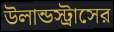
উলান্ডস্ট্রাসের